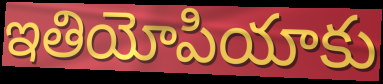
ఇతియోపియాకు